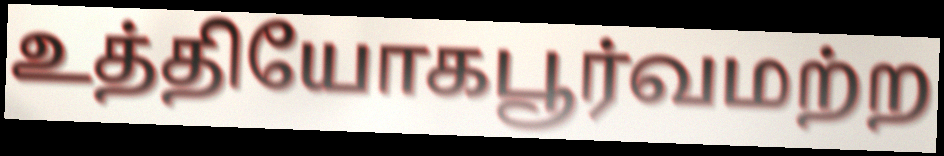
உத்தியோகபூர்வமற்ற